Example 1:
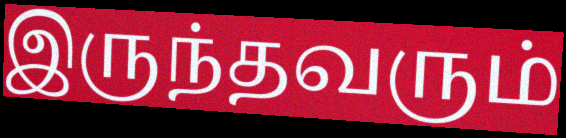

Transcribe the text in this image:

இருந்தவரும்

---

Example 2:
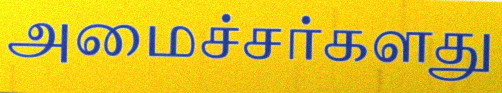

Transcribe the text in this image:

அமைச்சர்களது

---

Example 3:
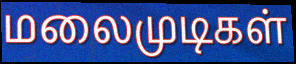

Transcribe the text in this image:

மலைமுடிகள்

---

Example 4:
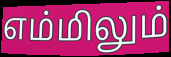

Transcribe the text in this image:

எம்மிலும்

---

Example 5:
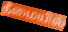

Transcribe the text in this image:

தீமையில்